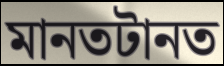
মানতটানত